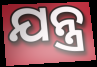
ଯନ୍ତ୍ର